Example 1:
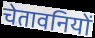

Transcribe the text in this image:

चेतावनियों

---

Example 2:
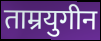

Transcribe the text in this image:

ताम्रयुगीन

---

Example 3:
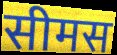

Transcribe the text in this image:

सीमस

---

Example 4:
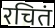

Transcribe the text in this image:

रचितं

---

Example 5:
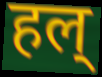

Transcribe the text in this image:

हल्